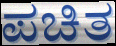
ಪಚಿತ